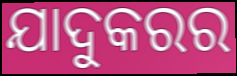
ଯାଦୁକରର